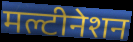
मल्टीनेशन